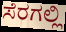
ಸೆರಗಲ್ಲಿ